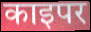
काइपर